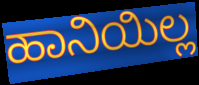
ಹಾನಿಯಿಲ್ಲ